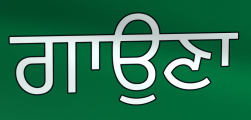
ਗਾਉਣਾ